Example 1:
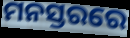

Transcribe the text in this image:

ମନସ୍ତରରେ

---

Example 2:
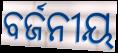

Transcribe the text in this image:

ବର୍ଜନୀୟ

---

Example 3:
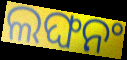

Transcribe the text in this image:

ଲଙ୍ଘନଂ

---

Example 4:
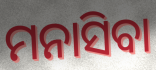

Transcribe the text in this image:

ମନାସିବା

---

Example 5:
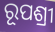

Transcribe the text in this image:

ରୂପଶ୍ରୀ